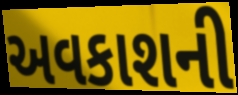
અવકાશની